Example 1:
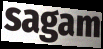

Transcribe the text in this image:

sagam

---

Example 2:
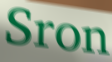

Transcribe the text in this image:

Sron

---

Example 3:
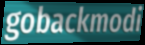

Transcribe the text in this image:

gobackmodi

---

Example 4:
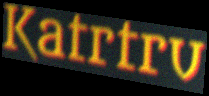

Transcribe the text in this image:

Katrtru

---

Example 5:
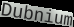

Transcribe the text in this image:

Dubnium